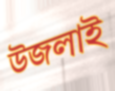
উজলাই